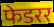
फेडरर